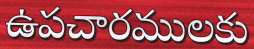
ఉపచారములకు